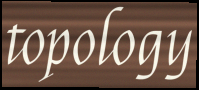
topology